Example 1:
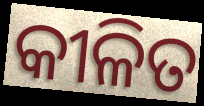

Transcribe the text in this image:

କୀଳିତ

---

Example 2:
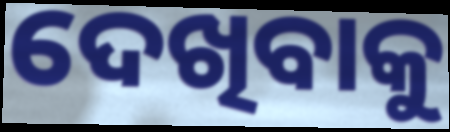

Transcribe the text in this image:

ଦେଖିବାକୁ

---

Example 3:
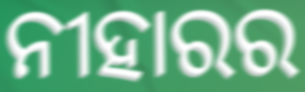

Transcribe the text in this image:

ନୀହାରର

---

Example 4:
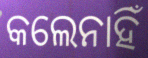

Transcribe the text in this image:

କଲେନାହିଁ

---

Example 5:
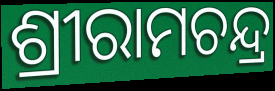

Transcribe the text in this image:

ଶ୍ରୀରାମଚନ୍ଦ୍ର